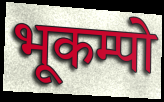
भूकम्पो